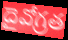
దైవోగ్రత